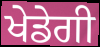
ਖੇਡੇਗੀ